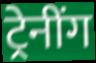
ट्रेनींग